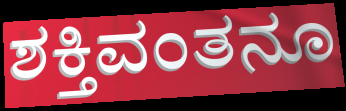
ಶಕ್ತಿವಂತನೂ